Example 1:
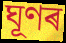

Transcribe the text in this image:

ঘূণৰ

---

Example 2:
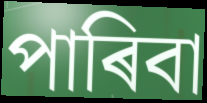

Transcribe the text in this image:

পাৰিবা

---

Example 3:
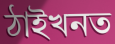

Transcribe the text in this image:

ঠাইখনত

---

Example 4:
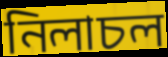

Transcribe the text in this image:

নিলাচল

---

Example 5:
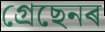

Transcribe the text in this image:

গ্ৰেছেনৰ